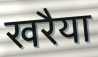
खरैया